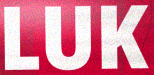
LUK